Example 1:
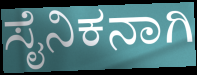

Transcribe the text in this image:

ಸೈನಿಕನಾಗಿ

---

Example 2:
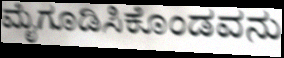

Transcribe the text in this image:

ಮೈಗೂಡಿಸಿಕೊಂಡವನು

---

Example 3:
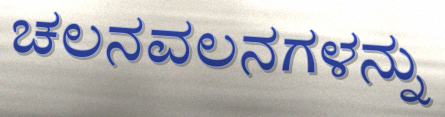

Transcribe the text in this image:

ಚಲನವಲನಗಳನ್ನು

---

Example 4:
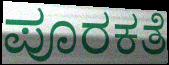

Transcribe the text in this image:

ಪೂರಕತೆ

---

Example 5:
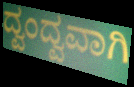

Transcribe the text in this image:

ದ್ವಂದ್ವವಾಗಿ